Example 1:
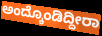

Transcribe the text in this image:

ಅಂದ್ಕೊಂಡಿದ್ದೀರಾ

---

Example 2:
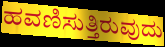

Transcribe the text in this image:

ಹವಣಿಸುತ್ತಿರುವುದು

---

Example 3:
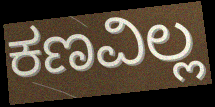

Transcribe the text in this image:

ಕಣವಿಲ್ಲ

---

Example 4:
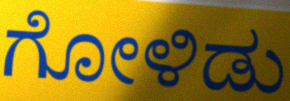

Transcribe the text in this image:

ಗೋಳಿಡು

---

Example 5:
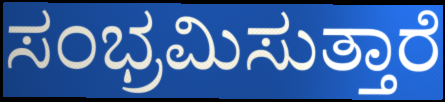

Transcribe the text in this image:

ಸಂಭ್ರಮಿಸುತ್ತಾರೆ